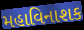
મહાવિનાશક